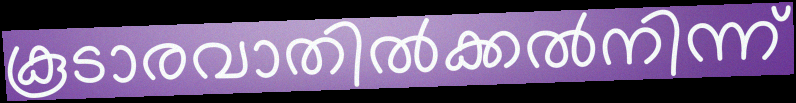
കൂടാരവാതിൽക്കൽനിന്ന്